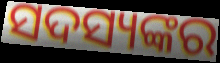
ସଦସ୍ୟଙ୍କର